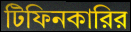
টিফিনকারির